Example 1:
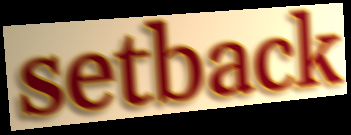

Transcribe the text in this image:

setback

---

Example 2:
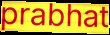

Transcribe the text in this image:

prabhat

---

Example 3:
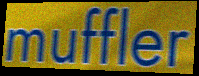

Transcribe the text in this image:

muffler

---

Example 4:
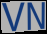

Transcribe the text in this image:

VN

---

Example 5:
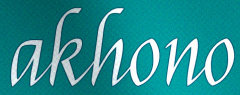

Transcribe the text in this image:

akhono